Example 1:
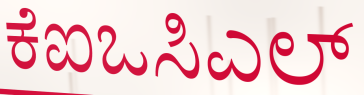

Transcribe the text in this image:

ಕೆಐಒಸಿಎಲ್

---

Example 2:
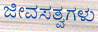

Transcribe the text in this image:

ಜೀವಸತ್ವಗಳು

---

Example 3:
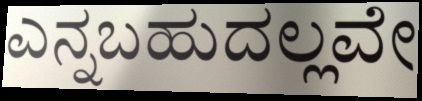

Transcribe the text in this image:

ಎನ್ನಬಹುದಲ್ಲವೇ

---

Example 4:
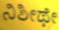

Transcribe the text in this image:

ನಿಶೀಥೇ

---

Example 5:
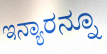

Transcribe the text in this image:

ಇನ್ಯಾರನ್ನೂ